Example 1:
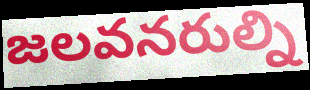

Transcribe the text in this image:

జలవనరుల్ని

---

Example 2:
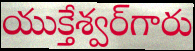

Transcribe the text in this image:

యుక్తేశ్వర్‌గారు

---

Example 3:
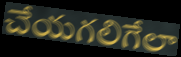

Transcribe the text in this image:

చేయగలిగేలా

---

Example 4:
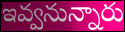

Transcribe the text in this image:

ఇవ్వనున్నారు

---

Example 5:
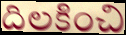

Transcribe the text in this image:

దిలకించి